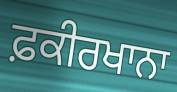
ਫ਼ਕੀਰਖਾਨਾ